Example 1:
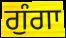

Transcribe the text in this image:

ਗੁੰਗਾ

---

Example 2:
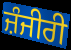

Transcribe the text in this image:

ਜ਼ੰਜੀਰੀ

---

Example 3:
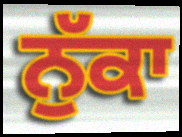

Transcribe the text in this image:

ਨੁੱਕਾ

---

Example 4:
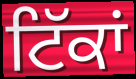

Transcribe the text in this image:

ਟਿੱਕਾਂ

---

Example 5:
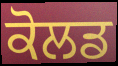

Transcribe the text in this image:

ਕੋਲਡ